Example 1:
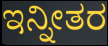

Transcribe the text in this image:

ಇನ್ನೀತರ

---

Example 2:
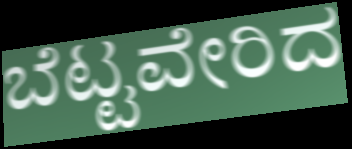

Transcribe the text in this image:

ಬೆಟ್ಟವೇರಿದ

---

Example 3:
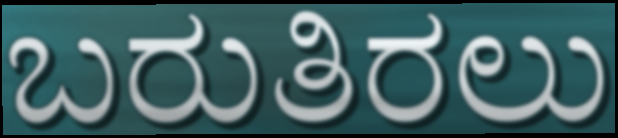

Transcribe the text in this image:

ಬರುತಿರಲು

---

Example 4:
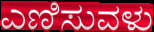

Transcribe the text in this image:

ಎಣಿಸುವಳು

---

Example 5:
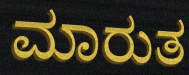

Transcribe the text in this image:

ಮಾರುತ